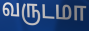
வருடமா